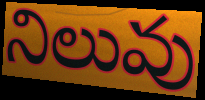
నిలువు